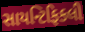
સાયન્ટિફિકલી